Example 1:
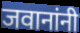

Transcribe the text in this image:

जवानांनी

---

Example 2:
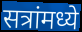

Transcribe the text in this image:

सत्रांमध्ये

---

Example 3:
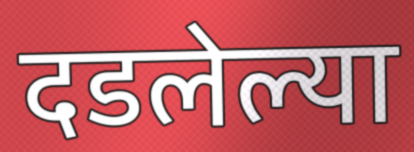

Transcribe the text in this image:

दडलेल्या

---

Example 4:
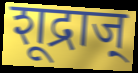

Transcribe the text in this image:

शूद्राज्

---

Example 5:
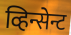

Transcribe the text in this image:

व्हिन्सेन्ट